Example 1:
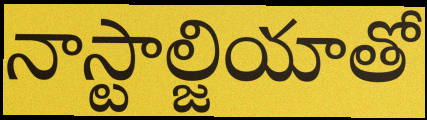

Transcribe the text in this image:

నాస్టాల్జియాతో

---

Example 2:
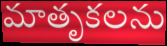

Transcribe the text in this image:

మాతృకలను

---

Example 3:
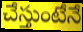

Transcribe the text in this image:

చేస్తుంటేనే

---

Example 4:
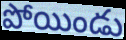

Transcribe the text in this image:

పోయిండు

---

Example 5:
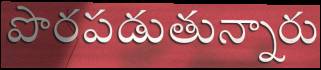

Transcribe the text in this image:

పొరపడుతున్నారు